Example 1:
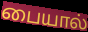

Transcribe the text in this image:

பையால்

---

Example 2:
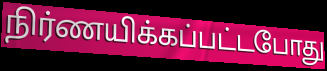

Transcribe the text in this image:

நிர்ணயிக்கப்பட்டபோது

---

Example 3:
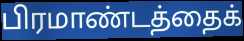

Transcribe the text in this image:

பிரமாண்டத்தைக்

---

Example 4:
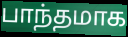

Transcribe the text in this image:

பாந்தமாக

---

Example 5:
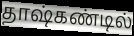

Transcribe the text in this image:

தாஷ்கண்டில்